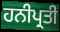
ਹਨੀਪ੍ਰਤੀ